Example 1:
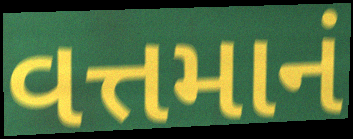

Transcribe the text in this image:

વત્તમાનં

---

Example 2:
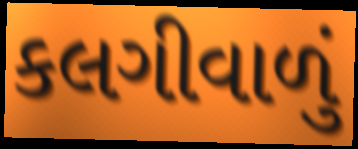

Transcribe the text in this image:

કલગીવાળું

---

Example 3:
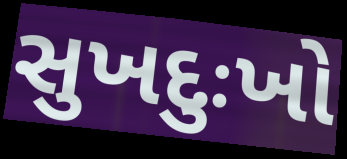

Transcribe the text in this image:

સુખદુઃખો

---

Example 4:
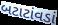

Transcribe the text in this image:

બટાટાંવડાં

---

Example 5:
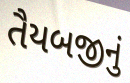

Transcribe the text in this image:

તૈયબજીનું